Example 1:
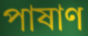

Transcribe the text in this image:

পাষাণ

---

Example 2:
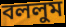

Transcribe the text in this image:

বললুম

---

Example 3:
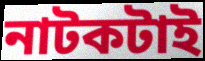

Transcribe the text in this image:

নাটকটাই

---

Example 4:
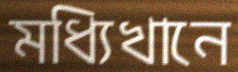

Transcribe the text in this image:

মধ্যিখানে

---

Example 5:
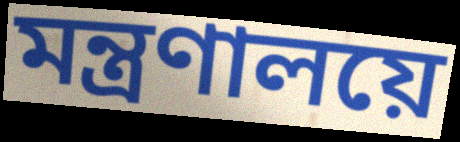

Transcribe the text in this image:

মন্ত্রণালয়ে